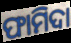
ଫାମିଦା